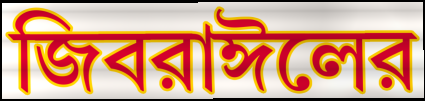
জিবরাঈলের